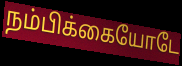
நம்பிக்கையோடே